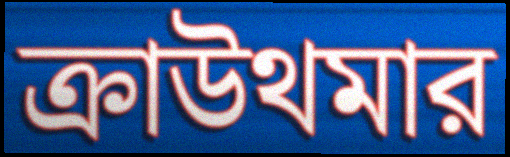
ক্রাউথমার